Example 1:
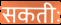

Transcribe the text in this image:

सकतीः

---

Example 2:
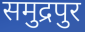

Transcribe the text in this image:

समुद्रपुर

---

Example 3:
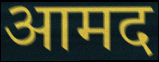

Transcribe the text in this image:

आमद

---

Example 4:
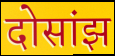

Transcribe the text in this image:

दोसांझ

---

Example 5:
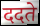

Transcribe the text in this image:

ददते